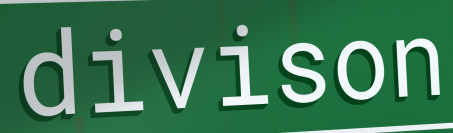
divison